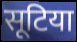
सूटिया